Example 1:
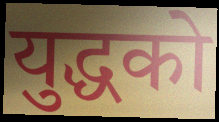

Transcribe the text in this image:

युद्धको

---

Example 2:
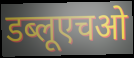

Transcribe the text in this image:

डब्लूएचओ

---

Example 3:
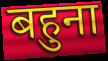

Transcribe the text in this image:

बहुना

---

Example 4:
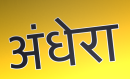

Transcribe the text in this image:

अंधेरा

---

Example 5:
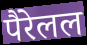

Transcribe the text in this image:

पैरेलल